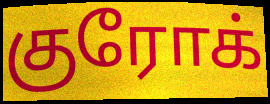
குரோக்